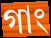
গাং